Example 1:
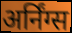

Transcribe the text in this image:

अर्निंग्स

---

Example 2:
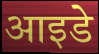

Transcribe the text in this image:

आइडे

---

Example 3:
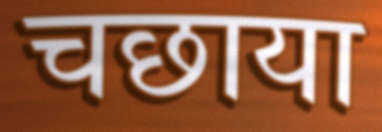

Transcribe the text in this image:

चछाया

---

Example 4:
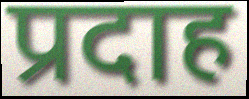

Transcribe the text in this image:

प्रदाह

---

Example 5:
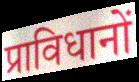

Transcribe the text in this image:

प्राविधानों